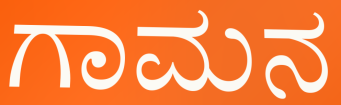
ಗಾಮನ